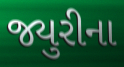
જ્યુરીના